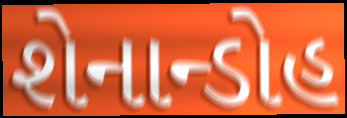
શેનાન્ડોહ